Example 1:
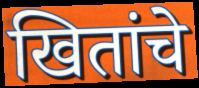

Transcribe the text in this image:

खितांचे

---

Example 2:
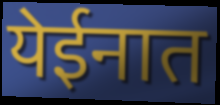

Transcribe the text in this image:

येईनात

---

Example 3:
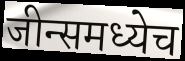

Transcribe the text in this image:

जीन्समध्येच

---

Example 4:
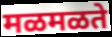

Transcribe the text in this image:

मळमळते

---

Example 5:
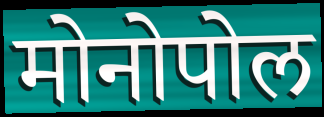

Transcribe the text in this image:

मोनोपोल